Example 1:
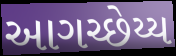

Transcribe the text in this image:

આગચ્છેય્ય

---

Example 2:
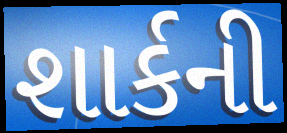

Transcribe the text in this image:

શાર્કની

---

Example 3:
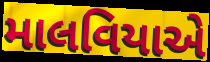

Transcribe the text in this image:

માલવિયાએ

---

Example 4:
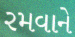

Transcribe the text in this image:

રમવાને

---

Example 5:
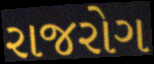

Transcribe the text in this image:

રાજરોગ